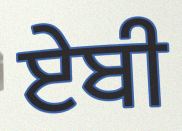
ਏਬੀ